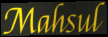
Mahsul